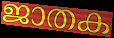
ജാതക